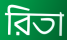
রিতা